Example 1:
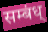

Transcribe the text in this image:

सम्बंध्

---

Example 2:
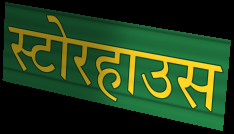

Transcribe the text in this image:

स्टोरहाउस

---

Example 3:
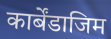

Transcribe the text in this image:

कार्बेंडाजिम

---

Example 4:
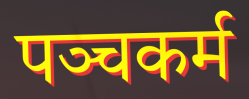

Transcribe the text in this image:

पञ्चकर्म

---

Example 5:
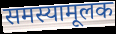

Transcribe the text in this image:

समस्यामूलक